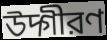
উদ্গীরণ